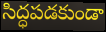
సిద్ధపడకుండా